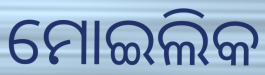
ମୋଇଲିକ